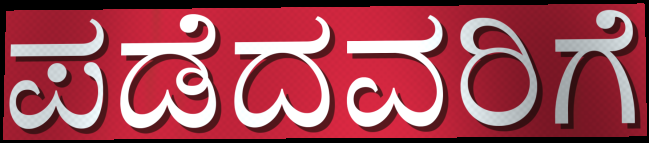
ಪಡೆದವರಿಗೆ